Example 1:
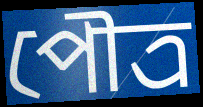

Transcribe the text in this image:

পৌত্র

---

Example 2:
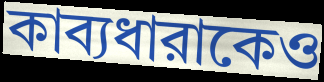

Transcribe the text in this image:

কাব্যধারাকেও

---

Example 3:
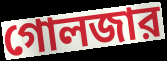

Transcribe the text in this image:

গোলজার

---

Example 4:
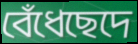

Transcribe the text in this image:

বেঁধেছেদে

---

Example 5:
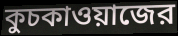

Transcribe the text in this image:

কুচকাওয়াজের